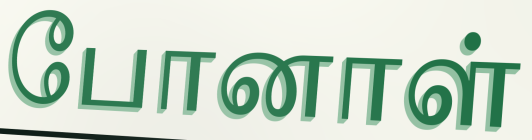
போனாள்